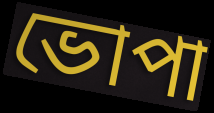
ভোপা